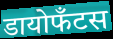
डायोफँटस